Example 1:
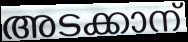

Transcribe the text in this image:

അടക്കാന്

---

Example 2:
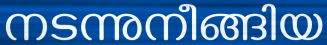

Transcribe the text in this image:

നടന്നുനീങ്ങിയ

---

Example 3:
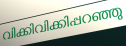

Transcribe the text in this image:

വിക്കിവിക്കിപ്പറഞ്ഞു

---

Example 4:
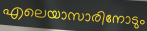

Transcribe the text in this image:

എലെയാസാരിനോടും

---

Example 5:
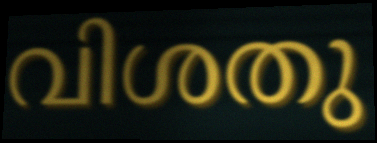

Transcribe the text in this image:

വിശതു